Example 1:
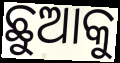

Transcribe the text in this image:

ଛୁଆକୁ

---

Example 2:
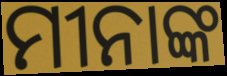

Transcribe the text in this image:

ମୀନାଙ୍କ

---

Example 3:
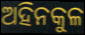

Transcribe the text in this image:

ଅହିନକୁଳ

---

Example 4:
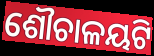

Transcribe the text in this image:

ଶୌଚାଳୟଟି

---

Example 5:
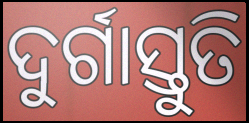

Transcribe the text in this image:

ଦୁର୍ଗାସ୍ତୁତି